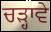
ਚੜ੍ਹਾਵੇ